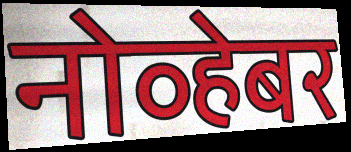
नोव्हेबर